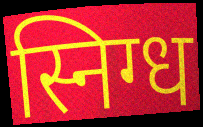
स्निग्ध